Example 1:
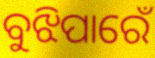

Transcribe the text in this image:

ବୁଝିପାରେଁ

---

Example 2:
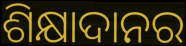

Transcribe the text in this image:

ଶିକ୍ଷାଦାନର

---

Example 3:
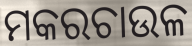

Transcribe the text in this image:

ମକରଚାଉଳ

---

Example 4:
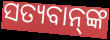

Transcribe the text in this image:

ସତ୍ୟବାନ୍‌ଙ୍କ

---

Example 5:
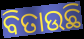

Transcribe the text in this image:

ବିତାଉଛି